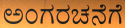
ಅಂಗರಚನೆಗೆ